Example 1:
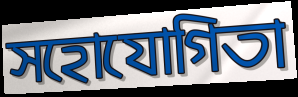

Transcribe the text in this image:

সহোযোগিতা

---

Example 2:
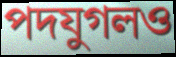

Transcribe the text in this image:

পদযুগলও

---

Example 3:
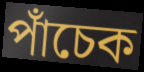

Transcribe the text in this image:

পাঁচেক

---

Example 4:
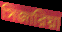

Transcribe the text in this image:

সিজারিয়া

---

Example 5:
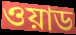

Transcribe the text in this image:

ওয়াড